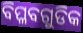
ବିପ୍ଳବଗୁଡିକ